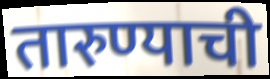
तारुण्याची